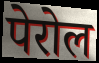
पेरोल